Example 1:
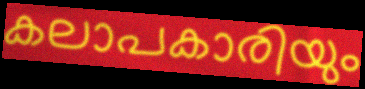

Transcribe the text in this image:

കലാപകാരിയും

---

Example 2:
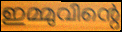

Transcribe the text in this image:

ഇമ്മുവിന്റെ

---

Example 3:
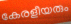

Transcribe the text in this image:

കേരളീയരും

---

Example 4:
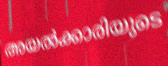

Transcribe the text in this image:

അയൽക്കാരിയുടെ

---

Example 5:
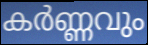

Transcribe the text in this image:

കർണ്ണവും